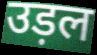
उड़ल